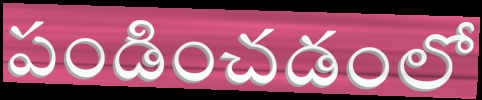
పండించడంలో